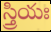
స్త్రియః